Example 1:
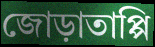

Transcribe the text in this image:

জোড়াতাপ্পি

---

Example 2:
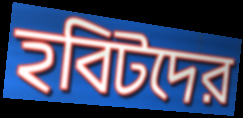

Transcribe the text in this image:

হবিটদের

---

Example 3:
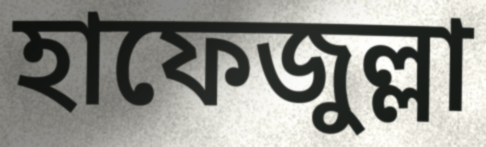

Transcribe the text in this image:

হাফেজুল্লা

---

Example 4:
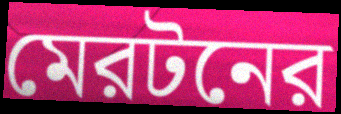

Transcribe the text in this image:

মেরটনের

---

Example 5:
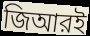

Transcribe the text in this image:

জিআরই